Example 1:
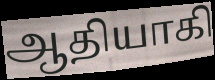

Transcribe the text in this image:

ஆதியாகி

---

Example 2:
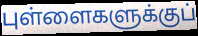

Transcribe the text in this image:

புள்ளைகளுக்குப்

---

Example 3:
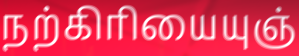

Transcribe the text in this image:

நற்கிரியையுஞ்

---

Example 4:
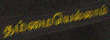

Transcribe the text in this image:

தம்மையெல்லாம்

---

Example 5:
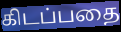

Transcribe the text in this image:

கிடப்பதை